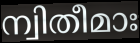
ന്വിതീമാഃ